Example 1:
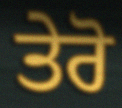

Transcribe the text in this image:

ਤੇਰੋ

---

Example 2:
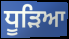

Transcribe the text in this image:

ਧੂੜਿਆ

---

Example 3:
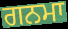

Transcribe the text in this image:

ਗਨਮਾ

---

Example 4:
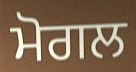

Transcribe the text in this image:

ਮੋਗਲ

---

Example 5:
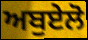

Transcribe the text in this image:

ਅਬੁਏਲੋ